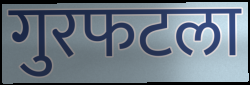
गुरफटला